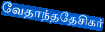
வேதாந்ததேசிகர்